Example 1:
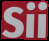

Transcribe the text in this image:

Sii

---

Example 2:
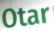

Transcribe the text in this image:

Otar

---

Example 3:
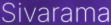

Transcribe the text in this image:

Sivarama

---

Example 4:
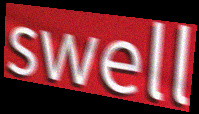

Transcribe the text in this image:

swell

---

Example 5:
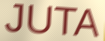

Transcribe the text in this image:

JUTA